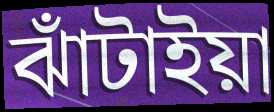
ঝাঁটাইয়া